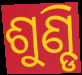
ଶୁଣ୍ଡି